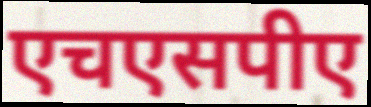
एचएसपीए